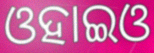
ଓହାଇଓ